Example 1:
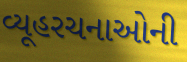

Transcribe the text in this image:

વ્યૂહરચનાઓની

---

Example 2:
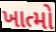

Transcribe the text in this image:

ખાત્મો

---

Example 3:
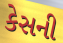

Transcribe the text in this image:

કેસની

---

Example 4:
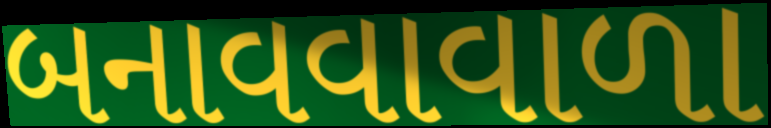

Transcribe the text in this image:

બનાવવાવાળા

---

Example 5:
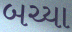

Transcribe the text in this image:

બચ્યા